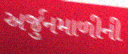
અર્જુનમાળીની